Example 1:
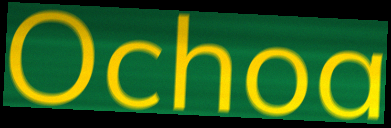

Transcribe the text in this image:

Ochoa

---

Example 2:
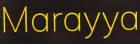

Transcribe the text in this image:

Marayya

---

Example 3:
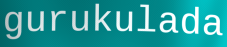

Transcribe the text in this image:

gurukulada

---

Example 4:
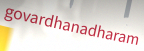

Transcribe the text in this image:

govardhanadharam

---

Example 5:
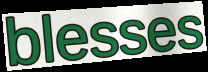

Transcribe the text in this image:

blesses